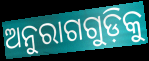
ଅନୁରାଗଗୁଡ଼ିକୁ